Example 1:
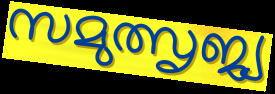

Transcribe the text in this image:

സമുത്സൃജ്യ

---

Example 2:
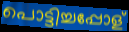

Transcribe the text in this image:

പൊട്ടിച്ചപ്പോള്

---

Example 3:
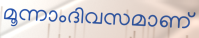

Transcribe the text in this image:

മൂന്നാംദിവസമാണ്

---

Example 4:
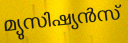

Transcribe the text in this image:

മ്യുസിഷ്യൻസ്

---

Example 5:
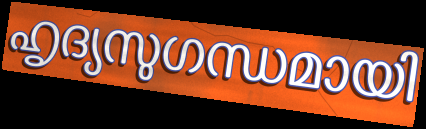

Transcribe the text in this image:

ഹൃദ്യസുഗന്ധമായി